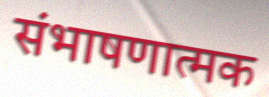
संभाषणात्मक